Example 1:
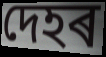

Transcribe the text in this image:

দেহৰ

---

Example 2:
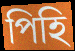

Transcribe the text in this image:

পিহি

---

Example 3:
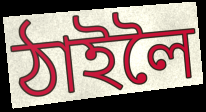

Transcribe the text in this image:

ঠাইলৈ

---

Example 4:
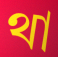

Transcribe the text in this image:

থা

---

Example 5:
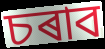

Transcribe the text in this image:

চৰাব